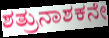
ಶತ್ರುನಾಶಕನೇ